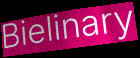
Bielinary